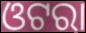
ଓଟରା